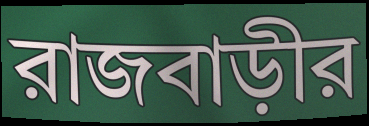
রাজবাড়ীর